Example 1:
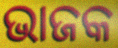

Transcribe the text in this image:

ଭାଜକ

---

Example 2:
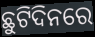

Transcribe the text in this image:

ଛୁଟିଦିନରେ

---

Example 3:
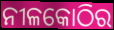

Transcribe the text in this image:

ନୀଳକୋଠିର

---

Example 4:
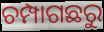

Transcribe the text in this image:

ଚମ୍ପାଗଛରୁ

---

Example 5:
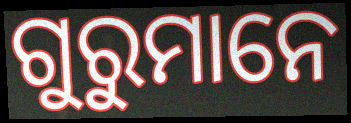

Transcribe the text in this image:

ଗୁରୁମାନେ